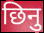
छिनु